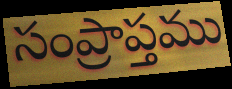
సంప్రాప్తము